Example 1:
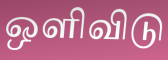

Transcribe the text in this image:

ஒளிவிடு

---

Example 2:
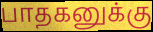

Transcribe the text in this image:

பாதகனுக்கு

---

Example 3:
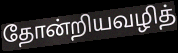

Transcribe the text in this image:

தோன்றியவழித்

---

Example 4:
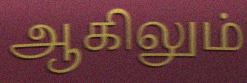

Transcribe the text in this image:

ஆகிலும்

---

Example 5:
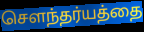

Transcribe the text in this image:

செளந்தர்யத்தை